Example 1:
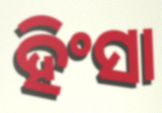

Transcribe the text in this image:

ହିଂସା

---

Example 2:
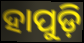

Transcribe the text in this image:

ହାପୁଡ଼ି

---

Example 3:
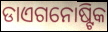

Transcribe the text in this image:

ଡାଏଗନୋଷ୍ଟିକ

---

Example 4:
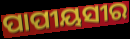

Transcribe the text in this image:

ପାପୀୟସୀର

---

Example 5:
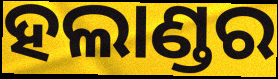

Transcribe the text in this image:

ହଲାଣ୍ଡର